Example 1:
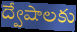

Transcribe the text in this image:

ద్వేషాలకు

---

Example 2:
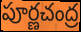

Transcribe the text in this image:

పూర్ణచంద్ర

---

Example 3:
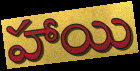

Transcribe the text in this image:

హాయి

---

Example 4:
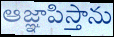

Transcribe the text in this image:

ఆజ్ఞాపిస్తాను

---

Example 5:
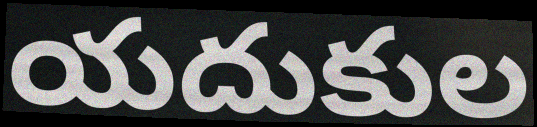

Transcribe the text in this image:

యదుకుల